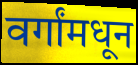
वर्गांमधून